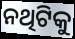
ନଥିଟିକୁ